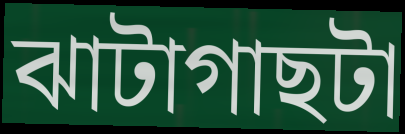
ঝাটাগাছটা